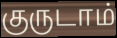
குருடாம்